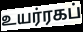
உயர்ரகப்